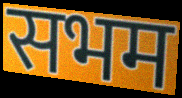
सभम